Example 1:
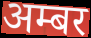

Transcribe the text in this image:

अम्बर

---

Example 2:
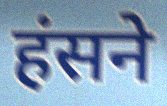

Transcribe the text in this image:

हंसने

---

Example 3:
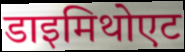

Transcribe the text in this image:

डाइमिथोएट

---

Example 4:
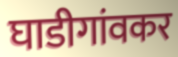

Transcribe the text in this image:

घाडीगांवकर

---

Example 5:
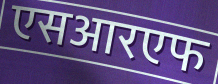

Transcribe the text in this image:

एसआरएफ